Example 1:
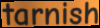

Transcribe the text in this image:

tarnish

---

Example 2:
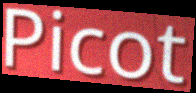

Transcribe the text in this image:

Picot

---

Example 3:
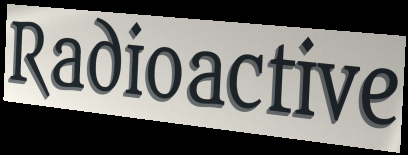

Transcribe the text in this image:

Radioactive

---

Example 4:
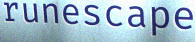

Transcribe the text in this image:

runescape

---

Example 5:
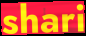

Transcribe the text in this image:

shari